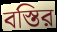
বস্তির